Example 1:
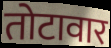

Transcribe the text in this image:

तोटावार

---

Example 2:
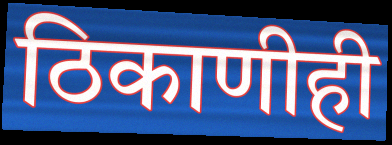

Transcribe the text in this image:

ठिकाणीही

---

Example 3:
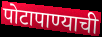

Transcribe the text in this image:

पोटापाण्याची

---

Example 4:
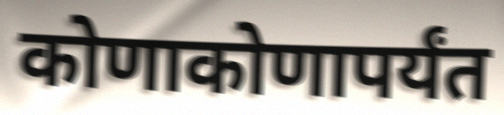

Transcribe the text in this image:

कोणाकोणापर्यंत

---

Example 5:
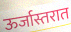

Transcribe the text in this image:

ऊर्जास्तरात